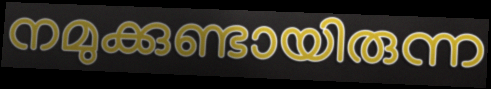
നമുക്കുണ്ടായിരുന്ന